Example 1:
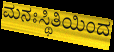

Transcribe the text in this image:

ಮನಃಸ್ಥಿತಿಯಿಂದ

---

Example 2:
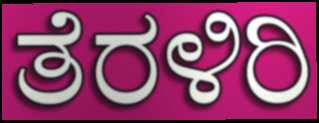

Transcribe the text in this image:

ತೆರಳಿರಿ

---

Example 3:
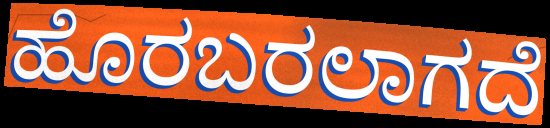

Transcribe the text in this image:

ಹೊರಬರಲಾಗದೆ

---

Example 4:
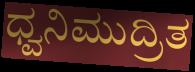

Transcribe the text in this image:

ಧ್ವನಿಮುದ್ರಿತ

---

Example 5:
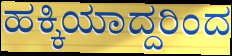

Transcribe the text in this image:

ಹಕ್ಕಿಯಾದ್ದರಿಂದ